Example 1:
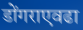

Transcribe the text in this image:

डोंगराएवढा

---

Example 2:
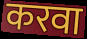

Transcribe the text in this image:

करवा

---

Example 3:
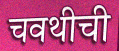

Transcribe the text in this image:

चवथीची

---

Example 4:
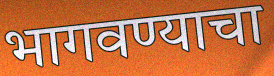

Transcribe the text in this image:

भागवण्याचा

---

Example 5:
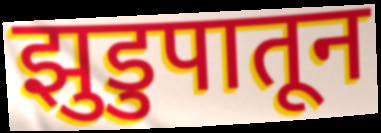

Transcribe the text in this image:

झुडुपातून